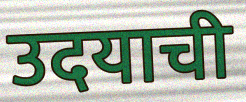
उदयाची